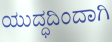
ಯುದ್ಧದಿಂದಾಗಿ